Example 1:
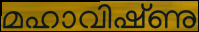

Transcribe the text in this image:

മഹാവിഷ്‌ണു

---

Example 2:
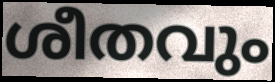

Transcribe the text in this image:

ശീതവും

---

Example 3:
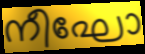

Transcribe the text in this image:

നീഘോ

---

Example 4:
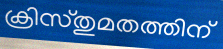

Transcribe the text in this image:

ക്രിസ്തുമതത്തിന്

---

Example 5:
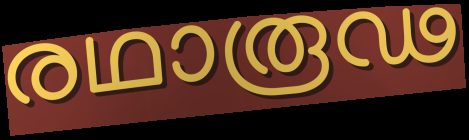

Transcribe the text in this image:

രഥാരൂഢ